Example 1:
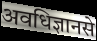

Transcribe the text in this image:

अवधिज्ञानसे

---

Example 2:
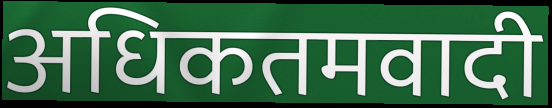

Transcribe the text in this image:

अधिकतमवादी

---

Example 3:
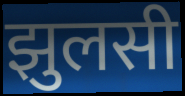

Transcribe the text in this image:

झुलसी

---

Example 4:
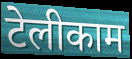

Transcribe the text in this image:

टेलीकाम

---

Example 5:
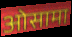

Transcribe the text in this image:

ओसामा